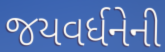
જયવર્ધનેની